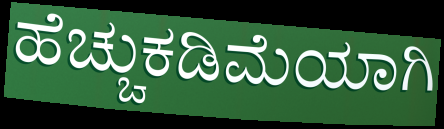
ಹೆಚ್ಚುಕಡಿಮೆಯಾಗಿ